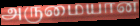
அருமையான